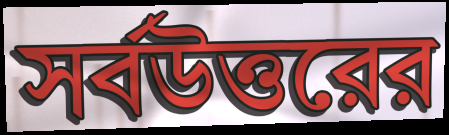
সর্বউত্তরের